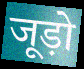
जूड़ो